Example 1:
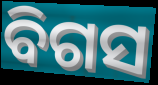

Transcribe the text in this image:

ବିଗସ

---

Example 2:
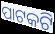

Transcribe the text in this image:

ପାଟକଟି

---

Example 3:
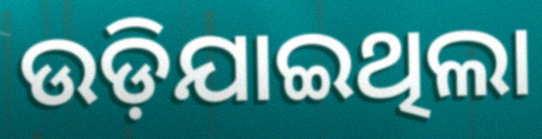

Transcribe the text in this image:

ଉଡ଼ିଯାଇଥିଲା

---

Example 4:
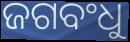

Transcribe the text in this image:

ଜଗବଂଧୁ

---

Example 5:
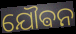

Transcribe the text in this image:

ଯୌଵନ